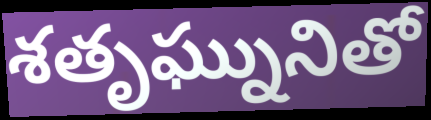
శతృఘ్నునితో